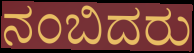
ನಂಬಿದರು